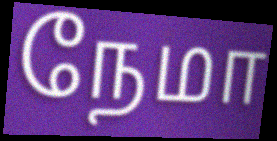
நேமா